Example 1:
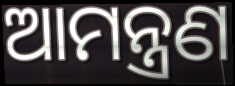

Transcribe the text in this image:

ଆମନ୍ତ୍ରଣ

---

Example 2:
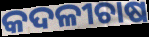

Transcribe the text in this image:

କଦଳୀଚାଷ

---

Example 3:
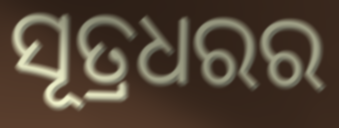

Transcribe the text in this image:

ସୂତ୍ରଧରର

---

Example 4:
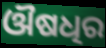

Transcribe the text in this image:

ଔଷଧିର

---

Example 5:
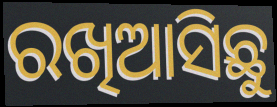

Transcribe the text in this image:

ରଖିଆସିଛୁ